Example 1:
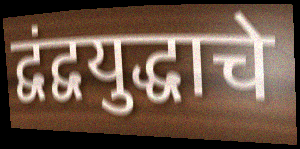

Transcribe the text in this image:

द्वंद्वयुद्धाचे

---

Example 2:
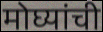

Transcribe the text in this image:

मोघ्यांची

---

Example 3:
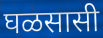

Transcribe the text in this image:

घळसासी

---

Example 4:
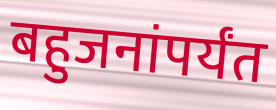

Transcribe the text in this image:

बहुजनांपर्यंत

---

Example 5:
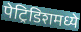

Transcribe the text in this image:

पेट्रिडिशमध्ये